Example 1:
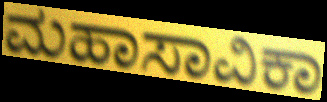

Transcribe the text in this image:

ಮಹಾಸಾವಿಕಾ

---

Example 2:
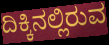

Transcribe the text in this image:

ದಿಕ್ಕಿನಲ್ಲಿರುವ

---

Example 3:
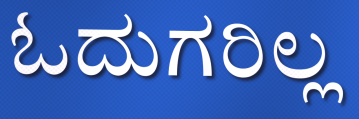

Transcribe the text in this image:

ಓದುಗರಿಲ್ಲ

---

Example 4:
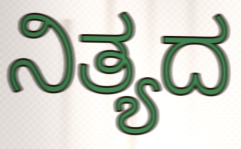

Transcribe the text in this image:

ನಿತ್ಯದ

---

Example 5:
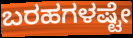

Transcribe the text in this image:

ಬರಹಗಳಷ್ಟೇ